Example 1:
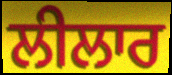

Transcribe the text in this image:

ਲੀਲਾਰ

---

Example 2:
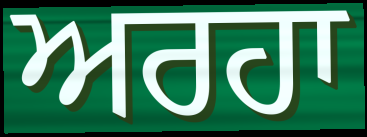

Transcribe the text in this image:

ਅਰਹਾ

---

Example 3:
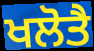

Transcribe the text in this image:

ਖਲੋਤੈ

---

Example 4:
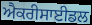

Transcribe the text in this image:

ਐਕਰੀਸਾਈਡਲ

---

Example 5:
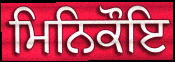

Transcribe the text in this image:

ਮਿਨਿਕੌਇ